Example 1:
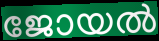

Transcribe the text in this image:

ജോയൽ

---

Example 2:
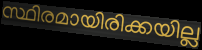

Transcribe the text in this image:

സ്ഥിരമായിരിക്കയില്ല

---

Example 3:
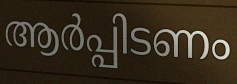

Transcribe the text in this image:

ആർപ്പിടണം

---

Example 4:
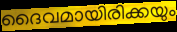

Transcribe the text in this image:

ദൈവമായിരിക്കയും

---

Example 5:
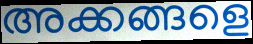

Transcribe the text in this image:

അക്കങ്ങളെ